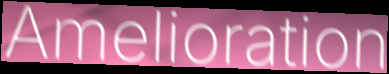
Amelioration